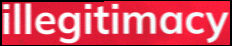
illegitimacy